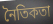
নৈতিকতা